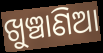
ଖୁଞ୍ଚାଣିଆ